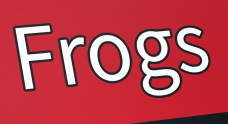
Frogs